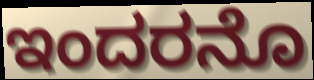
ಇಂದರನೊ